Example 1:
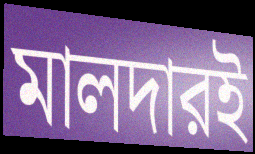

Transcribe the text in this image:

মালদারই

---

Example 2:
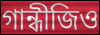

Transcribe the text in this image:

গান্ধীজিও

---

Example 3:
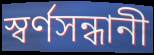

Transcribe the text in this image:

স্বর্ণসন্ধানী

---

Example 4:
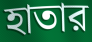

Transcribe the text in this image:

হাতার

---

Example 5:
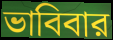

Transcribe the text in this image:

ভাবিবার